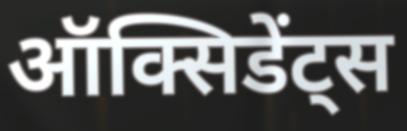
ऑक्सिडेंट्स